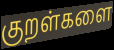
குறள்களை